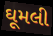
ઘૂમલી